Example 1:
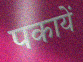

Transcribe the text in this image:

पकायें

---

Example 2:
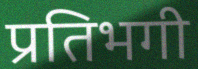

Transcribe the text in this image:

प्रतिभगी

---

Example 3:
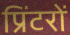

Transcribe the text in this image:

प्रिंटरों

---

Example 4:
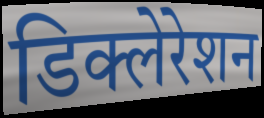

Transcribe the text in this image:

डिक्लेरेशन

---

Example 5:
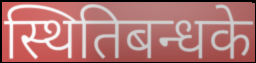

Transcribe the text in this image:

स्थितिबन्धके